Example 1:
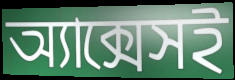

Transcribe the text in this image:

অ্যাক্সেসই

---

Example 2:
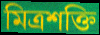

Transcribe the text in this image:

মিত্রশক্তি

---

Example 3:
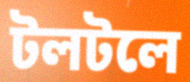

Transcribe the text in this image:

টলটলে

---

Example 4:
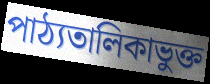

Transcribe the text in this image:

পাঠ্যতালিকাভুক্ত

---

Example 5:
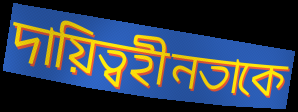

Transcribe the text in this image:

দায়িত্বহীনতাকে